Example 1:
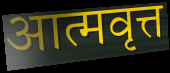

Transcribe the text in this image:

आत्मवृत्त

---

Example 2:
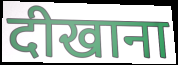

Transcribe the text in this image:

दीखाना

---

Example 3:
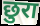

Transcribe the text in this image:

छुरा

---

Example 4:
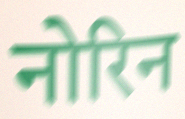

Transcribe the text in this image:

नोरिन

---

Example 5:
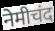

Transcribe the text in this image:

नेमीचंद